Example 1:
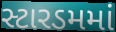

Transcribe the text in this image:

સ્ટારડમમાં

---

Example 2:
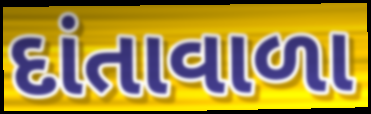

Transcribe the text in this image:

દાંતાવાળા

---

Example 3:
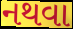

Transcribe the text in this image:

નથવા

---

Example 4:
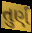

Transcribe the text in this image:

તુર્ણ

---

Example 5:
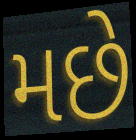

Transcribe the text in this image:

મછે